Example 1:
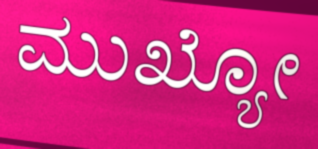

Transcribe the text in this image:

ಮುಖ್ಯೋ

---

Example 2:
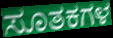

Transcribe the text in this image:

ಸೂತಕಗಳ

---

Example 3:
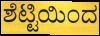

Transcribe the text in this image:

ಶೆಟ್ಟಿಯಿಂದ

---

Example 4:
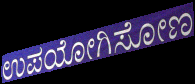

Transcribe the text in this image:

ಉಪಯೋಗಿಸೋಣ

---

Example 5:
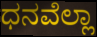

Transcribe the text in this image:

ಧನವೆಲ್ಲಾ